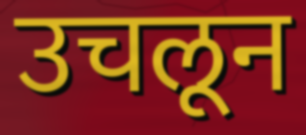
उचलून